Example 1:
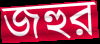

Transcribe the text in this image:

জহুর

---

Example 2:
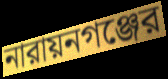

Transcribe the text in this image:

নারায়নগঞ্জের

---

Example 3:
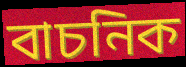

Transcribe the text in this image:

বাচনিক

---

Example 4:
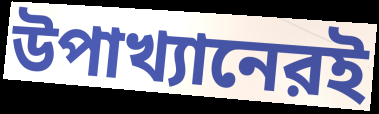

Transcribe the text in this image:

উপাখ্যানেরই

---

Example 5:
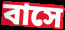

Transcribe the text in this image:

বাসে